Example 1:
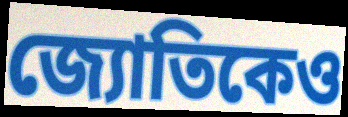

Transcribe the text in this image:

জ্যোতিকেও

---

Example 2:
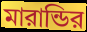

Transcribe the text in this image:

মারান্ডির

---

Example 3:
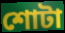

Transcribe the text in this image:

শোটা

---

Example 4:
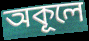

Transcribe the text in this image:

অকূলে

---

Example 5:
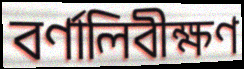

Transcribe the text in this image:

বর্ণালিবীক্ষণ